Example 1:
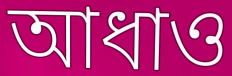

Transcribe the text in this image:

আধাও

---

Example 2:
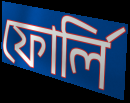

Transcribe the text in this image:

ফোর্লি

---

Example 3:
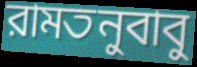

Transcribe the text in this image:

রামতনুবাবু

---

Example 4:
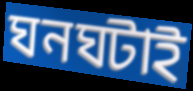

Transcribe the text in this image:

ঘনঘটাই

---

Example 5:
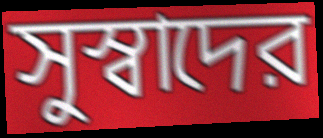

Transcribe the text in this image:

সুস্বাদের